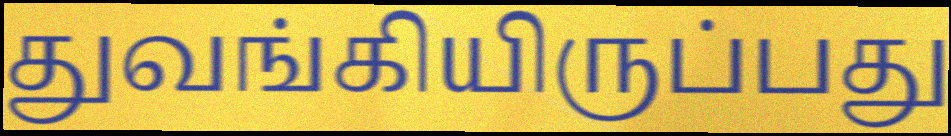
துவங்கியிருப்பது